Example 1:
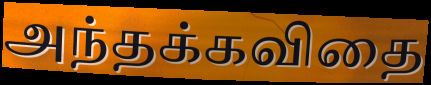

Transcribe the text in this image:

அந்தக்கவிதை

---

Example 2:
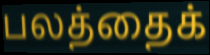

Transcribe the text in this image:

பலத்தைக்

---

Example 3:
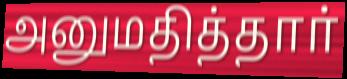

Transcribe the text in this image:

அனுமதித்தார்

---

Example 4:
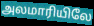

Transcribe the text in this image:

அலமாரியிலே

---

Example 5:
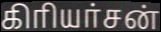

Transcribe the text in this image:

கிரியர்சன்